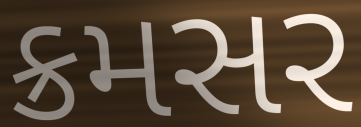
ક્રમસર